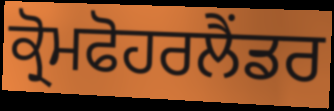
ਕ੍ਰੋਮਫੋਹਰਲੈਂਡਰ